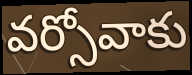
వర్సోవాకు